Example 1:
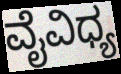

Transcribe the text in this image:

ವೈವಿಧ್ಯ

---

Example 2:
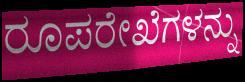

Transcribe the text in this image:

ರೂಪರೇಖೆಗಳನ್ನು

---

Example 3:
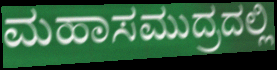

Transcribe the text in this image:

ಮಹಾಸಮುದ್ರದಲ್ಲಿ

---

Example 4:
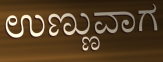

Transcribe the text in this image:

ಉಣ್ಣುವಾಗ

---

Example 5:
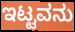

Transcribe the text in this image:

ಇಟ್ಟವನು